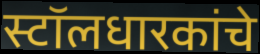
स्टॉलधारकांचे